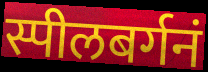
स्पीलबर्गनं